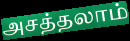
அசத்தலாம்